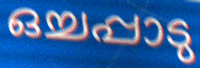
ഒച്ചപ്പാടു